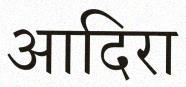
आदिरा